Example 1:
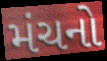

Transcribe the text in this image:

મંચનો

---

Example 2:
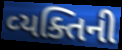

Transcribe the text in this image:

વ્‍યક્તિની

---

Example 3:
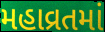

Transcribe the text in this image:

મહાવ્રતમાં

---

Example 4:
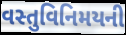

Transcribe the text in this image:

વસ્તુવિનિમયની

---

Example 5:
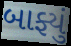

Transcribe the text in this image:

બાફ્યું